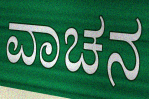
ವಾಚನ